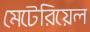
মেটেরিয়েল